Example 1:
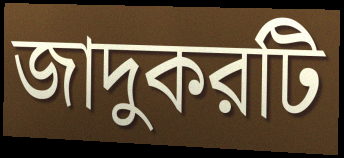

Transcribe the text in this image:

জাদুকরটি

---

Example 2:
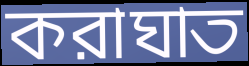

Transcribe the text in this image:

করাঘাত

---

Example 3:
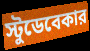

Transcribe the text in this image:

স্টুডেবেকার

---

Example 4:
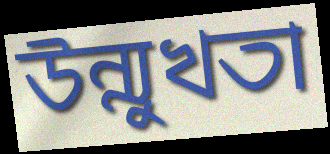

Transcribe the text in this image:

উন্মুখতা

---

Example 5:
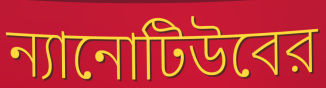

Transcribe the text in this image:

ন্যানোটিউবের